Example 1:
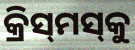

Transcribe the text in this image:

କ୍ରିସ୍‌ମସ୍‌କୁ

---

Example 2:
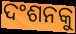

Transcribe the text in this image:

ଦଂଶନକୁ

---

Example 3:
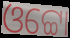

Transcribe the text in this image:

ଓଟ୍ଟୋ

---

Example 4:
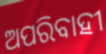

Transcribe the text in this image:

ଅପରିବାହୀ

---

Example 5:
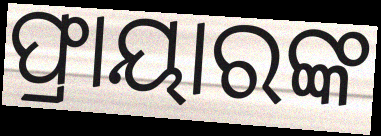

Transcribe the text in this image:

ଫ୍ରାୟାରଙ୍କ